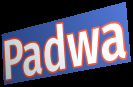
Padwa